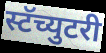
स्टॅच्युटरी